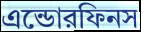
এন্ডোরফিনস